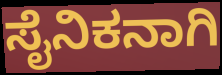
ಸೈನಿಕನಾಗಿ